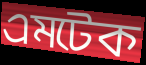
এমটেক